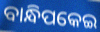
ବାନ୍ଧିପକେଇ